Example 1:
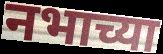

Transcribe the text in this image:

नभाच्या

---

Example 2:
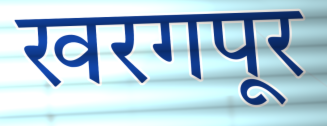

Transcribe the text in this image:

खरगपूर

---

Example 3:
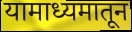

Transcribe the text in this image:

यामाध्यमातून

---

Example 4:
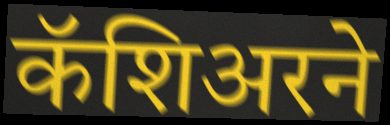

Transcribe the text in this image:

कॅशिअरने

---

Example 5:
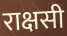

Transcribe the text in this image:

राक्षसी